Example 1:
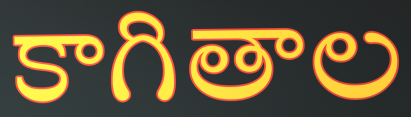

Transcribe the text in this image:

కాగితాల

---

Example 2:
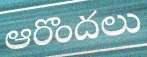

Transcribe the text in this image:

ఆరొందలు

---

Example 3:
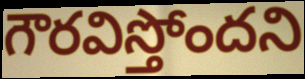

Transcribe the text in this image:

గౌరవిస్తోందని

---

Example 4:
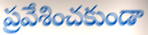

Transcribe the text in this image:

ప్రవేశించకుండా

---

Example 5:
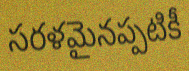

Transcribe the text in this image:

సరళమైనప్పటికీ